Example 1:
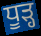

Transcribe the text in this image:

ਧੂੜ੍ਹ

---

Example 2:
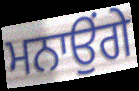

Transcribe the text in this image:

ਮਨਾਉਂਗੇ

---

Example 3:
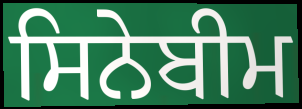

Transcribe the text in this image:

ਸਿਨੇਬੀਮ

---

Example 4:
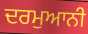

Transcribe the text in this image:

ਦਰਮੁਆਨੀ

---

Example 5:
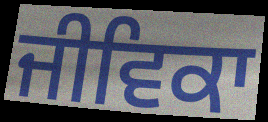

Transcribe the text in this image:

ਜੀਵਿਕਾ